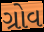
ગ્રોવ